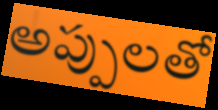
అప్పులతో